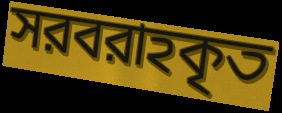
সরবরাহকৃত